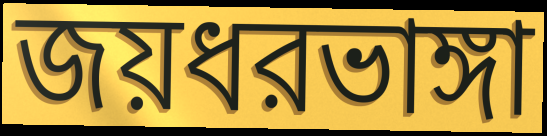
জয়ধরভাঙ্গা